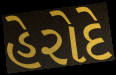
હેરોદે